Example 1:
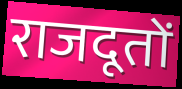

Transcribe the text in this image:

राजदूतों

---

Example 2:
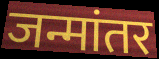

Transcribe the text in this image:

जन्मांतर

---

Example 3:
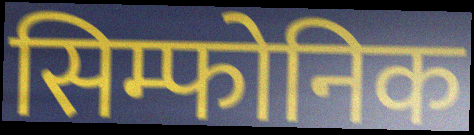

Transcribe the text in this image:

सिम्फोनिक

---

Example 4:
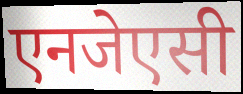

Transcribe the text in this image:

एनजेएसी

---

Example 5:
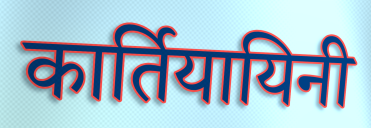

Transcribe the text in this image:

कार्तियायिनी